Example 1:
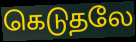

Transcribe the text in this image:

கெடுதலே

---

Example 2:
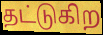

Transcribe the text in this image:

தட்டுகிற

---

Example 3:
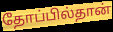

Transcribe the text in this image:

தோப்பில்தான்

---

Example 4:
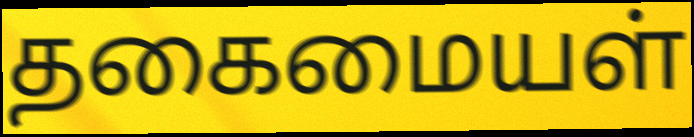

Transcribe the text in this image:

தகைமையள்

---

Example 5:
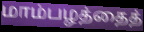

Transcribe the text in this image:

மாம்பழத்தைத்